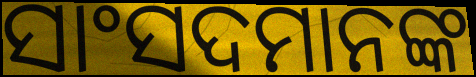
ସାଂସଦମାନଙ୍କ